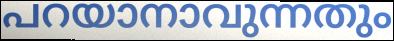
പറയാനാവുന്നതും